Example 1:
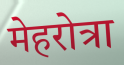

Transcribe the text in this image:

मेहरोत्रा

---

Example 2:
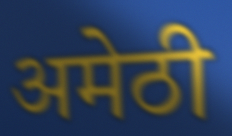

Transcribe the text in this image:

अमेठी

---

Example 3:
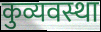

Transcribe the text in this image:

कुव्यवस्था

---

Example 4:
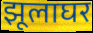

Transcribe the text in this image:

झूलाघर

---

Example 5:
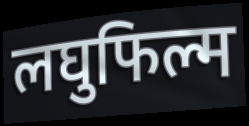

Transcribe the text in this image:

लघुफिल्म